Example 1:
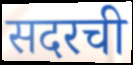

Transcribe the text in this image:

सदरची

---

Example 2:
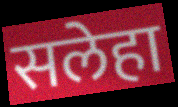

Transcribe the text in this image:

सलेहा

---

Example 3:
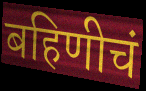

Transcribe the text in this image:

बहिणीचं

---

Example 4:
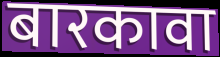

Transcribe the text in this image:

बारकावा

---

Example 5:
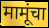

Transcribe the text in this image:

मामूंचा